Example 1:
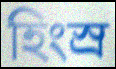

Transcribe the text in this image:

হিংস্ৰ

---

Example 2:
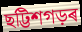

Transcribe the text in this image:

ছট্টিশগড়ৰ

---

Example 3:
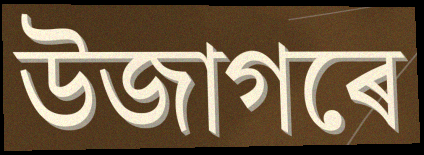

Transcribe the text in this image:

উজাগৰে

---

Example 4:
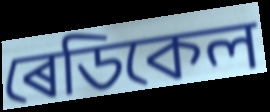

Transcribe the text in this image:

ৰেডিকেল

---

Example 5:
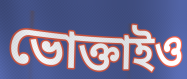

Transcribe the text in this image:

ভোক্তাইও